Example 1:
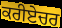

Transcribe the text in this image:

ਕਰੀਏਚਰ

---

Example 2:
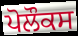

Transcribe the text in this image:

ਪੋਲੌਕਸ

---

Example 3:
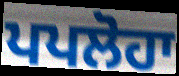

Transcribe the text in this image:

ਪਪਲੋਹਾ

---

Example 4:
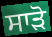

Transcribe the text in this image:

ਸਾੜੋ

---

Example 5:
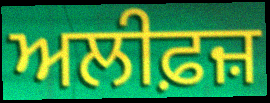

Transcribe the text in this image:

ਅਲੀਫ਼ਜ਼